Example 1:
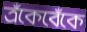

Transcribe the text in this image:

ত্রঁকেবেঁকে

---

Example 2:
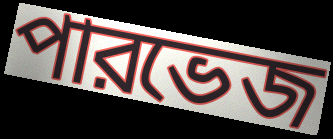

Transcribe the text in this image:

পারভেজ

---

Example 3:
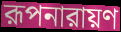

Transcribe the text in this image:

রূপনারায়ণ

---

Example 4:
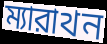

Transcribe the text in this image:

ম্যারাথন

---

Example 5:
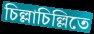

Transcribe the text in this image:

চিল্লাচিল্লিতে